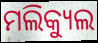
ମଲିକ୍ୟୁଲ